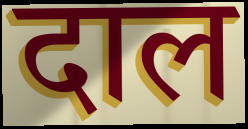
दाल